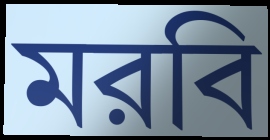
মরবি